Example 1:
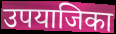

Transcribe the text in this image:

उपयाजिका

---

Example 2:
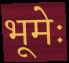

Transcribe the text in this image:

भूमेः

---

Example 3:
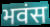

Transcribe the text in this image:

भवंस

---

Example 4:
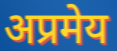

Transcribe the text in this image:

अप्रमेय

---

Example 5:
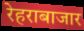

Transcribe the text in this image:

रेहराबाजार